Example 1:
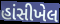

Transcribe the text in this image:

હાંસીખેલ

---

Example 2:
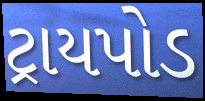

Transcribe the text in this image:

ટ્રાયપોડ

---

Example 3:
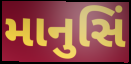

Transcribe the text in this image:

માનુસિં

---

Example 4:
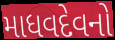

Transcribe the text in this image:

માધવદેવનો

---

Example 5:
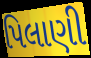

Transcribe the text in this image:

પિલાણી